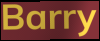
Barry